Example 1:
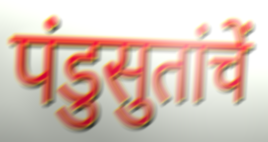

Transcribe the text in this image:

पंडुसुतांचें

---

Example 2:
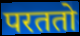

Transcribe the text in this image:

परततो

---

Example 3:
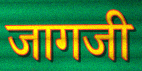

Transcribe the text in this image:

जागजी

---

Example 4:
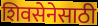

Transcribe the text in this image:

शिवसेनेसाठी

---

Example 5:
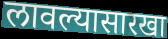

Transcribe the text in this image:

लावल्यासारखा